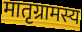
मातृग्रामस्य